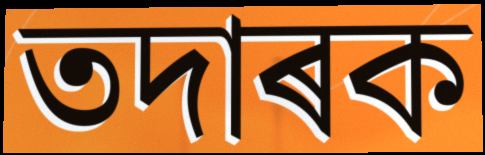
তদাৰক